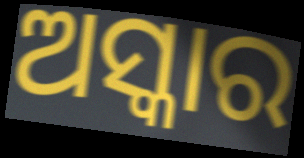
ଅସ୍କାର